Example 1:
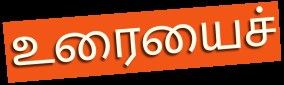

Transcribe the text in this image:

உரையைச்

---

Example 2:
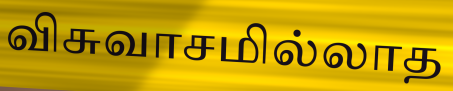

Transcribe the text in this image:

விசுவாசமில்லாத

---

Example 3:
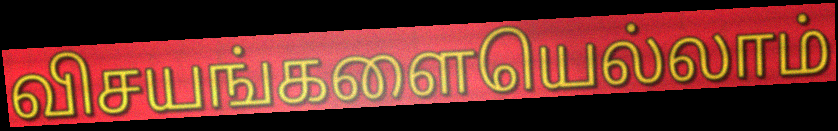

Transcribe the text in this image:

விசயங்களையெல்லாம்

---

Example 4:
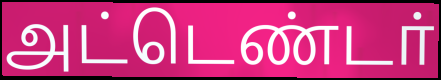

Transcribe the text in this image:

அட்டெண்டர்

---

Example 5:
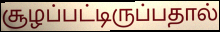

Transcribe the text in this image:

சூழப்பட்டிருப்பதால்